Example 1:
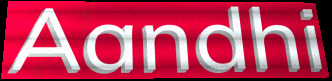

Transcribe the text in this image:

Aandhi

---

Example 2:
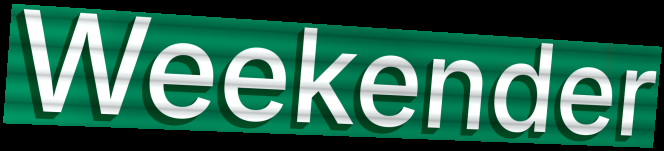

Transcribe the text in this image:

Weekender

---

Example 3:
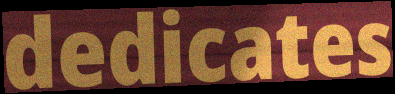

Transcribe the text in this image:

dedicates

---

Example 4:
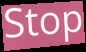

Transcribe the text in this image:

Stop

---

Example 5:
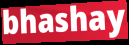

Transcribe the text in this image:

bhashay